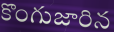
కొంగుజారిన